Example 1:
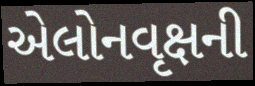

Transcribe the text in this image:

એલોનવૃક્ષની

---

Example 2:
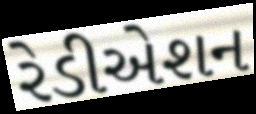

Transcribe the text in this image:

રેડીએશન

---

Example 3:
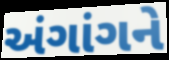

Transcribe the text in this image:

અંગાંગને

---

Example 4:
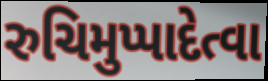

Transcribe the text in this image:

રુચિમુપ્પાદેત્વા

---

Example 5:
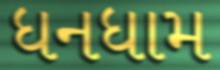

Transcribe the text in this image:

ધનધામ